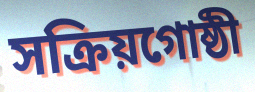
সক্রিয়গোষ্ঠী